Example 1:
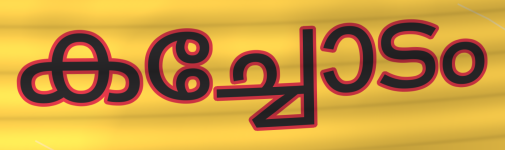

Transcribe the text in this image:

കച്ചോടം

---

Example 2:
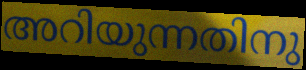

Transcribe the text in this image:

അറിയുന്നതിനു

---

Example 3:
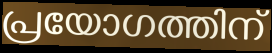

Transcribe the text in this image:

പ്രയോഗത്തിന്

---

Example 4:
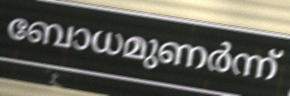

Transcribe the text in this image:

ബോധമുണർന്ന്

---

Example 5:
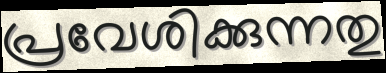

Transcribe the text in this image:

പ്രവേശിക്കുന്നതു